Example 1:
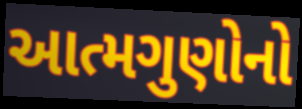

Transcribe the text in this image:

આત્મગુણોનો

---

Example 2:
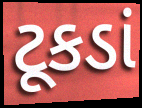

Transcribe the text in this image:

ટૂકડાં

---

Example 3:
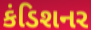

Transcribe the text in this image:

કંડિશનર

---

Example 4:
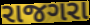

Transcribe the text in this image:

રાજગરા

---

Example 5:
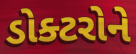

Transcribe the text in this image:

ડોક્ટરોને